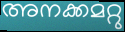
അനക്കമറ്റു